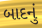
બાદનું